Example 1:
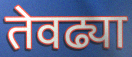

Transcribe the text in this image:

तेवढ्या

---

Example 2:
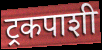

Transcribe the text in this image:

ट्रकपाशी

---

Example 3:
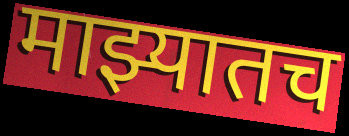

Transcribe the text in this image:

माझ्यातच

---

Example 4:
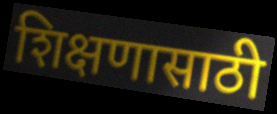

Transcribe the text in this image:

शिक्षणासाठी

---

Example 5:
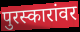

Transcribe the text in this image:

पुरस्कारांवर